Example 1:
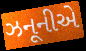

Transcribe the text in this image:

ઝનૂનીએ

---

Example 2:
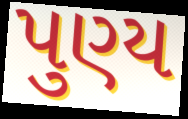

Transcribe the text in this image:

પુણ્ય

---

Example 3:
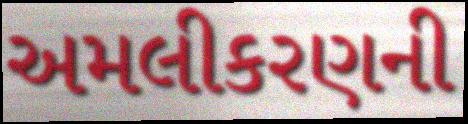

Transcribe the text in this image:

અમલીકરણની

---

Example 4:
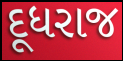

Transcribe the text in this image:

દૂધરાજ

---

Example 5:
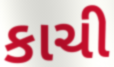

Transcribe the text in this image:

કાચી